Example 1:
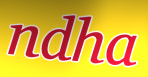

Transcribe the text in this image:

ndha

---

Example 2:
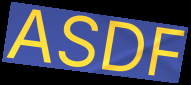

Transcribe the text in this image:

ASDF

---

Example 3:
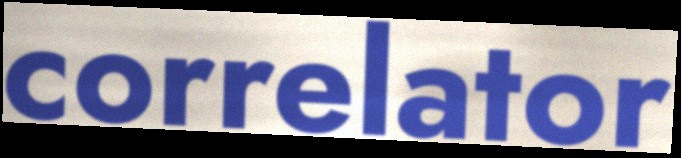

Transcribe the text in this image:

correlator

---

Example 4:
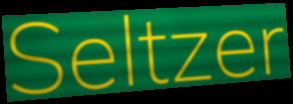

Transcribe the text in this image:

Seltzer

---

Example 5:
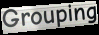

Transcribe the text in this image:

Grouping